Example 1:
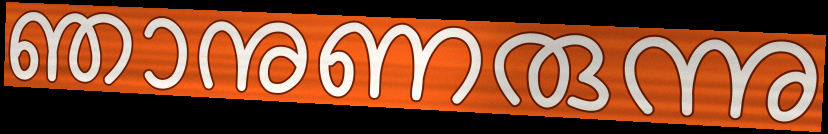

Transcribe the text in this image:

ഞാനുണരുന്നു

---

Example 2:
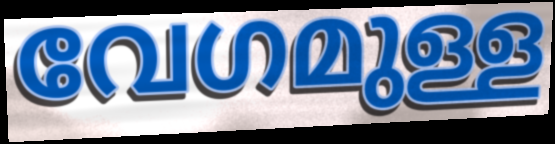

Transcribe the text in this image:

വേഗമുള്ള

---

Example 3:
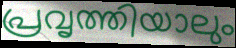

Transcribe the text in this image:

പ്രവൃത്തിയാലും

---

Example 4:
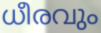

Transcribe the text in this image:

ധീരവും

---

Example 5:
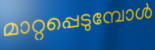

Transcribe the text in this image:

മാറ്റപ്പെടുമ്പോൾ